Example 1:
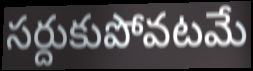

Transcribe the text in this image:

సర్దుకుపోవటమే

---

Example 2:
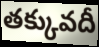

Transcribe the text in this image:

తక్కువదీ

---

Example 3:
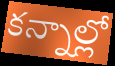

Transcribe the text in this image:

కన్నాల్లో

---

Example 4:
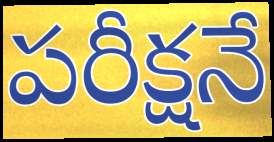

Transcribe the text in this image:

పరీక్షనే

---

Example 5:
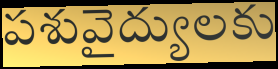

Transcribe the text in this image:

పశువైద్యులకు